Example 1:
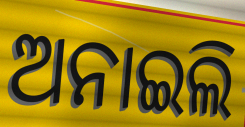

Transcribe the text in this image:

ଅନାଇଲି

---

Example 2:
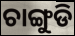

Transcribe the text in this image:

ଚାଙ୍ଗୁଡି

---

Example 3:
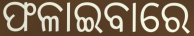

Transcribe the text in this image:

ଫଳାଇବାରେ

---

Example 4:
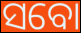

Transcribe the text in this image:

ସବୋ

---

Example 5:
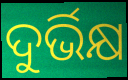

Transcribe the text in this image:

ଦୁର୍ଭିକ୍ଷ